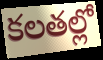
కలతల్లో